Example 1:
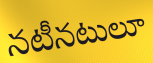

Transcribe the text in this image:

నటీనటులూ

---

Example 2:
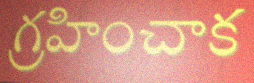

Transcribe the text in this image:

గ్రహించాక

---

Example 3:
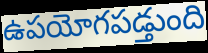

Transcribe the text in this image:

ఉపయోగపడ్తుంది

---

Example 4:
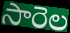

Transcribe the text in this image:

సారెల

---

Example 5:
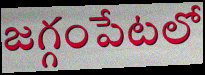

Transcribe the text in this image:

జగ్గంపేటలో